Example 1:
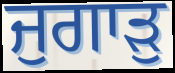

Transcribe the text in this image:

ਜੁਗਾੜੁ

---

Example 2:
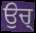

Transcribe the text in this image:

ਉਚ੍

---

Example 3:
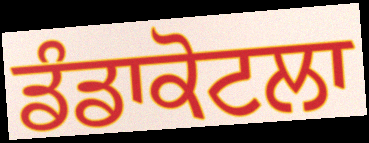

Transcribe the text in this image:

ਡੰਡਾਕੋਟਲਾ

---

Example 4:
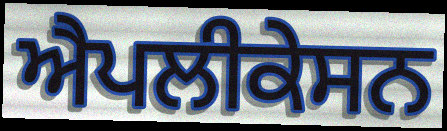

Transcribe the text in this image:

ਐਪਲੀਕੇਸਨ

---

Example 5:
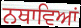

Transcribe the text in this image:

ਨਥਾਵਿਆਂ